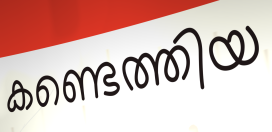
കണ്ടെത്തിയ